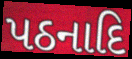
પઠનાદિ